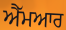
ਐੱਮਆਰ